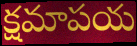
క్షమాపయ